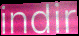
indir